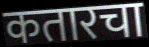
कतारचा